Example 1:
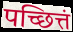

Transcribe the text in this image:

पच्छित्तं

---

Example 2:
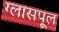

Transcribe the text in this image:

ग्लासपूल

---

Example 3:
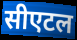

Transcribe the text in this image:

सीएटल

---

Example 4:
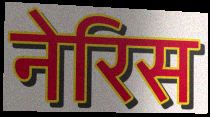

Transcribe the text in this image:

नेरिस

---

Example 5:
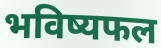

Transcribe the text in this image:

भविष्यफल